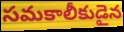
సమకాలీకుడైన